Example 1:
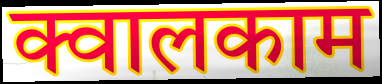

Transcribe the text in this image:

क्वालकाम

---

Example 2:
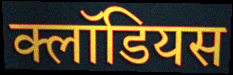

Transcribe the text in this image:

क्लॉडियस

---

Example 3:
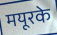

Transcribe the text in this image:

मयूरके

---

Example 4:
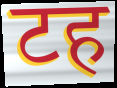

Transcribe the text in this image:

टह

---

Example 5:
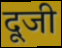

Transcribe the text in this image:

दूजी